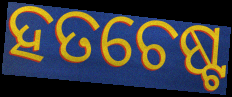
ହତଚେଷ୍ଟ